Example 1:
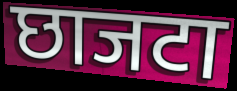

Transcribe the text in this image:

छाजटा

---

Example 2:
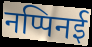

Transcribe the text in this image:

नप्पिनई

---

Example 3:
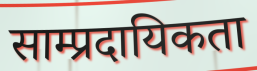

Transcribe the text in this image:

साम्प्रदायिकता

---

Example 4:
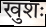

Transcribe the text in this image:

खुशः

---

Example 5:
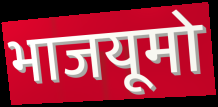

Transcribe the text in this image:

भाजयूमो